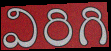
విరిగి